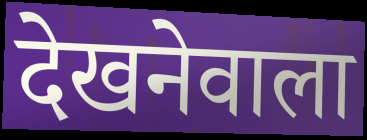
देखनेवाला